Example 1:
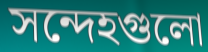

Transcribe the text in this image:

সন্দেহগুলো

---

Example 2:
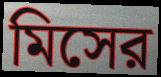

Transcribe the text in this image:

মিসের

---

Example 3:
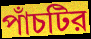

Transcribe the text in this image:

পাঁচটির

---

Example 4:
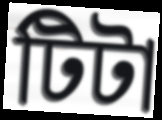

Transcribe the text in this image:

টিটা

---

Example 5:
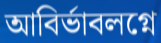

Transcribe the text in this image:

আবির্ভাবলগ্নে